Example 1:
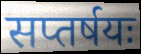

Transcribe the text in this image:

सप्तर्षयः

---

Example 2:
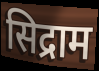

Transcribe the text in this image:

सिद्राम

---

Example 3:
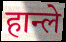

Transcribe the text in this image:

हान्ले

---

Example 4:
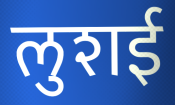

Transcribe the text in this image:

लुशई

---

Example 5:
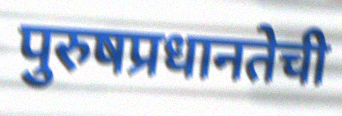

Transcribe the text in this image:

पुरुषप्रधानतेची